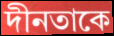
দীনতাকে